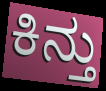
ಕಿನ್ತು